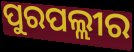
ପୁରପଲ୍ଲୀର